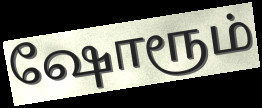
ஷோரூம்